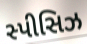
સ્પીસિઝ